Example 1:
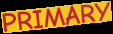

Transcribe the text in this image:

PRIMARY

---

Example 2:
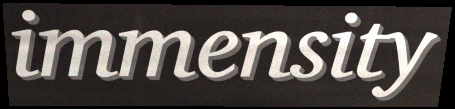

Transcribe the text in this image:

immensity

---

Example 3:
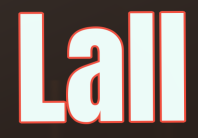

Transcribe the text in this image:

Lall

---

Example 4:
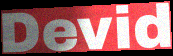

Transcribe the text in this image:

Devid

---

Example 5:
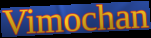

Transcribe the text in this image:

Vimochan